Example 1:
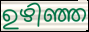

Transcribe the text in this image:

ഉഴിഞ്ഞ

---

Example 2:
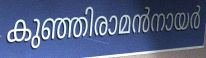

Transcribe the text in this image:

കുഞ്ഞിരാമൻനായർ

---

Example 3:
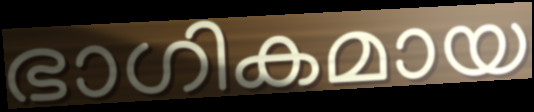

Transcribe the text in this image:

ഭാഗികമായ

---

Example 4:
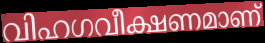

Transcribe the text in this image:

വിഹഗവീക്ഷണമാണ്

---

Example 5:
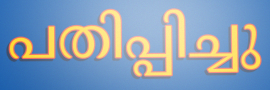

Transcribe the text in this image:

പതിപ്പിച്ചു